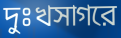
দুঃখসাগরে